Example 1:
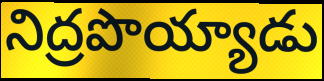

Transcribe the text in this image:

నిద్రపొయ్యాడు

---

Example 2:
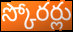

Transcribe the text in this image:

స్కోరర్లు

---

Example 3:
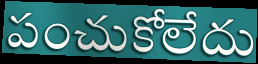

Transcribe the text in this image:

పంచుకోలేదు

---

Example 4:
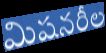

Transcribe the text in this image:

మిషనరీల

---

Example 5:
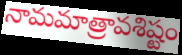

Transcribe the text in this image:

నామమాత్రావశిష్టం